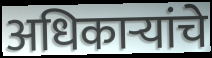
अधिकाऱ्यांचे